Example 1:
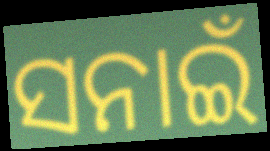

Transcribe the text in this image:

ସନାଇଁ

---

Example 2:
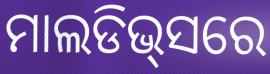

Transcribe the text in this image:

ମାଲଡିଭ୍‌ସରେ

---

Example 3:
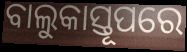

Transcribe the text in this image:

ବାଲୁକାସ୍ତୂପରେ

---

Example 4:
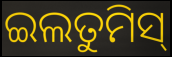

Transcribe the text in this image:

ଇଲତୁମିସ୍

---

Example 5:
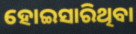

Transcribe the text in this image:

ହୋଇସାରିଥିବା